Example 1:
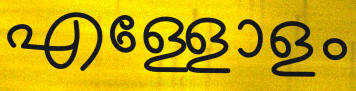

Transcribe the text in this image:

എള്ളോളം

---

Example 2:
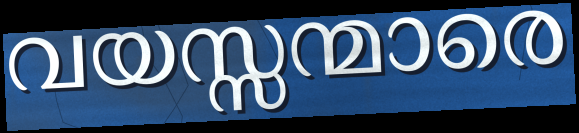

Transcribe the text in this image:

വയസ്സന്മാരെ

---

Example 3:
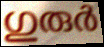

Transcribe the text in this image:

ഗുരുർ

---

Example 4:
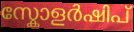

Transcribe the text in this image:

സ്കോളർഷിപ്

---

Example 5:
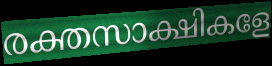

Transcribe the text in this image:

രക്തസാക്ഷികളേ